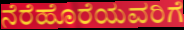
ನೆರೆಹೊರೆಯವರಿಗೆ